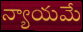
న్యాయమే